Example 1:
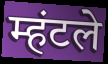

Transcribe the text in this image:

म्हंटले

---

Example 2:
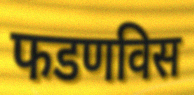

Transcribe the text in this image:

फडणविस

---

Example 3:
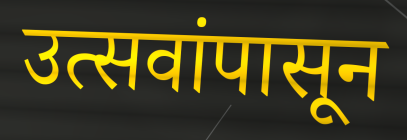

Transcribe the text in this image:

उत्सवांपासून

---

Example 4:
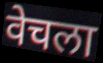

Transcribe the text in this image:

वेचला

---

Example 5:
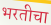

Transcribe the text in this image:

भरतीचा